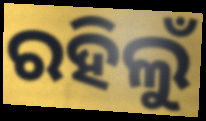
ରହିଲୁଁ